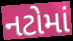
નટોમાં